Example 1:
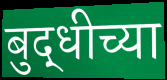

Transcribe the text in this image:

बुद्धीच्या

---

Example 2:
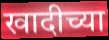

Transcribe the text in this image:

खादीच्या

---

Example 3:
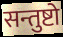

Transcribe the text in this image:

सन्तुष्टो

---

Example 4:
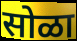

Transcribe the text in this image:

सोळा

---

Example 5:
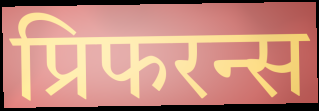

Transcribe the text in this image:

प्रिफरन्स